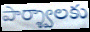
పార్శ్వాలకు